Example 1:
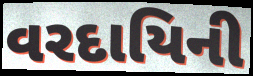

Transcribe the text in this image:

વરદાયિની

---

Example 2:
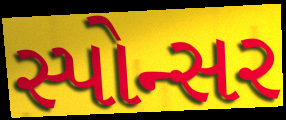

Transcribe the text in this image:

સ્પોન્સર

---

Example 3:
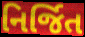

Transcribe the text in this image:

નિર્જિત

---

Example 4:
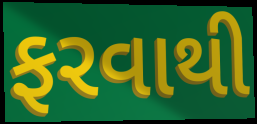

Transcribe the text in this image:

ફરવાથી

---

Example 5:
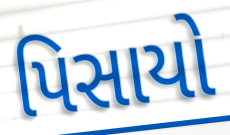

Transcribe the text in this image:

પિસાયો